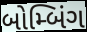
બોમ્બિંગ